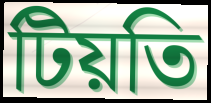
টিয়তি